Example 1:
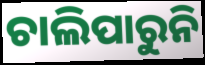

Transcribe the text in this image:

ଚାଲିପାରୁନି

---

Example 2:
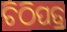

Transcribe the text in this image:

ଚିଠିପତ୍ର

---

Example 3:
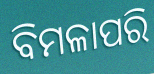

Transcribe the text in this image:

ବିମଳାପରି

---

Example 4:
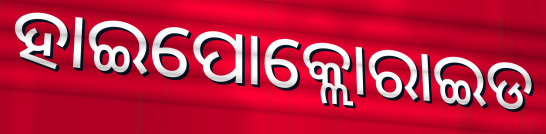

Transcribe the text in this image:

ହାଇପୋକ୍ଲୋରାଇଡ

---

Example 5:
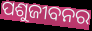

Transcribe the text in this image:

ପଶୁଜୀବନର